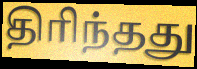
திரிந்தது